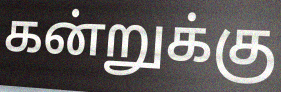
கன்றுக்கு